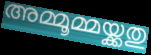
അമ്മൂമ്മയ്ക്കതു